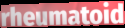
rheumatoid